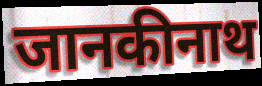
जानकीनाथ